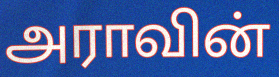
அராவின்